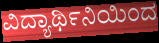
ವಿದ್ಯಾರ್ಥಿನಿಯಿಂದ